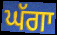
ਘੱਗਾ